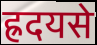
ह्रदयसे